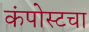
कंपोस्टचा